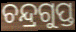
ଚନ୍ଦ୍ରଗୁପ୍ତ